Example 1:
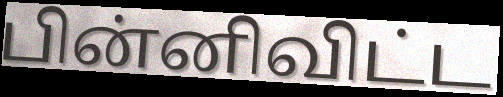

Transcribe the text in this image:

பின்னிவிட்ட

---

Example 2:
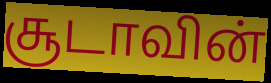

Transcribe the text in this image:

சூடாவின்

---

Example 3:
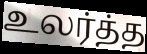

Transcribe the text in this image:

உலர்த்த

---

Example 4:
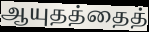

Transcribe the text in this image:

ஆயுதத்தைத்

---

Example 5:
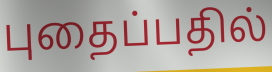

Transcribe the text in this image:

புதைப்பதில்